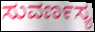
ಸುವರ್ಣಸ್ಯ